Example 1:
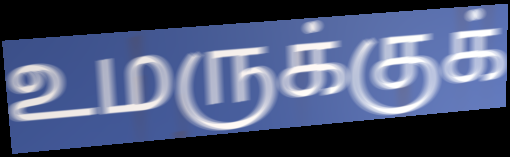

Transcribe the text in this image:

உமருக்குக்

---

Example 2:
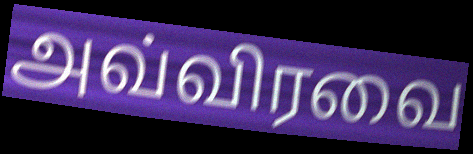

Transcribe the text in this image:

அவ்விரவை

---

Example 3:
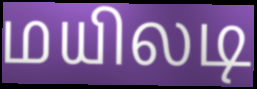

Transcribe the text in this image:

மயிலடி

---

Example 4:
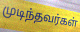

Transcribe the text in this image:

முடிந்தவர்கள்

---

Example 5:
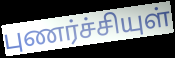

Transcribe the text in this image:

புணர்ச்சியுள்